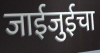
जाईजुईचा